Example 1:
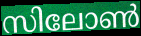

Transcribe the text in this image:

സിലോൺ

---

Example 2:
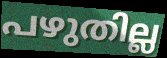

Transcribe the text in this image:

പഴുതില്ല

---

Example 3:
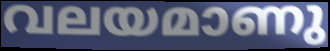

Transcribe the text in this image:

വലയമാണു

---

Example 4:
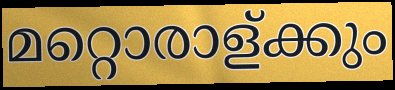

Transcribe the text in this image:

മറ്റൊരാള്ക്കും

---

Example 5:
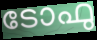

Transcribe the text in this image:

ടോഫു